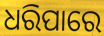
ଧରିପାରେ